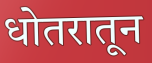
धोतरातून